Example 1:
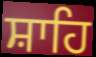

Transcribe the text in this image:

ਸ਼ਾਹਿ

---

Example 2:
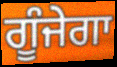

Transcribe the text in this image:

ਗੂੰਜੇਗਾ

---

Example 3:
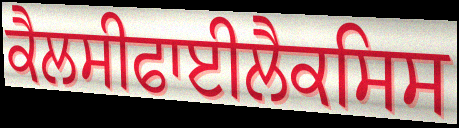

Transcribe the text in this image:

ਕੈਲਸੀਫਾਈਲੈਕਸਿਸ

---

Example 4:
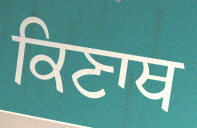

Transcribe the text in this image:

ਕਿਣਾਥ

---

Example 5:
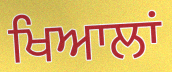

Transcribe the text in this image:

ਖਿਆਲਾਂ